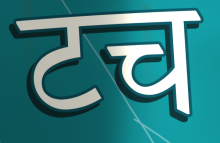
टच